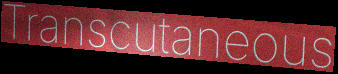
Transcutaneous